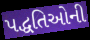
પદ્ધતિઓની